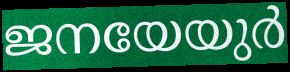
ജനയേയുർ